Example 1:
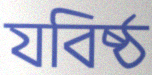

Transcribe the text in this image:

যবিষ্ঠ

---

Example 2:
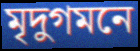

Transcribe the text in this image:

মৃদুগমনে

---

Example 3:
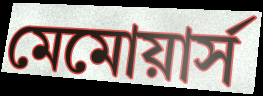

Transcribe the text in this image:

মেমোয়ার্স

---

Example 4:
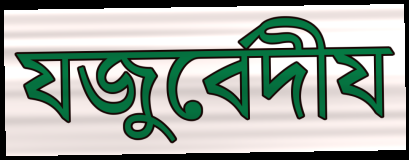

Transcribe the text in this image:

যজুর্বেদীয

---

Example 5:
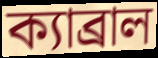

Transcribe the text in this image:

ক্যাব্রাল